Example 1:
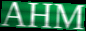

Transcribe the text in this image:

AHM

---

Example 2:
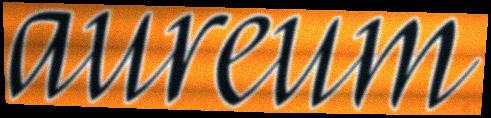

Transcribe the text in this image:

aureum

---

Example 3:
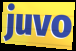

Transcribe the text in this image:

juvo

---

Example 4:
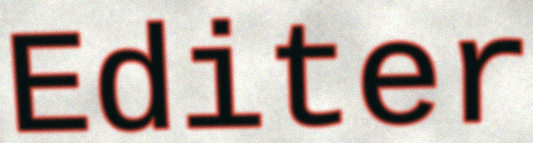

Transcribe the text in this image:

Editer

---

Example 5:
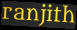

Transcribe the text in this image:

ranjith